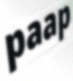
paap